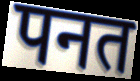
पनत